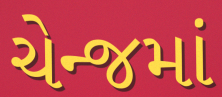
ચેન્જમાં